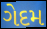
ગેદમ